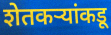
शेतकऱ्यांकडू